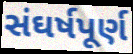
સંઘર્ષપૂર્ણ